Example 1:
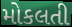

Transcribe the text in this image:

મોકલતી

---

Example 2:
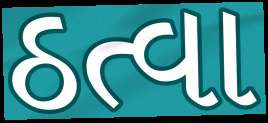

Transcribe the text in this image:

ઠત્વા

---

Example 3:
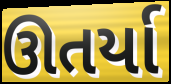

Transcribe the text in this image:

ઊતર્યા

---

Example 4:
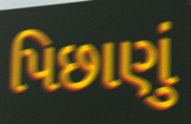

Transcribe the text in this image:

પિછાણું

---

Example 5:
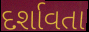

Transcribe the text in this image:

દર્શાવતા